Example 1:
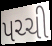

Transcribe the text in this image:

પચ્ચી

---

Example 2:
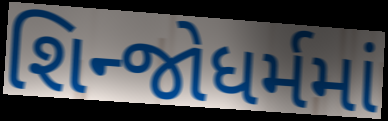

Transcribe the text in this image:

શિન્જોધર્મમાં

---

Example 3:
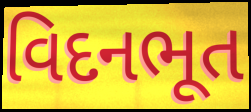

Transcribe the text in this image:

વિદનભૂત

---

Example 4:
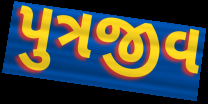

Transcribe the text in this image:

પુત્રજીવ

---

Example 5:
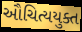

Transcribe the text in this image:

ઔચિત્યયુક્ત